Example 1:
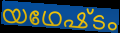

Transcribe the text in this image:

യഥേഷ്‌ടം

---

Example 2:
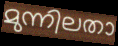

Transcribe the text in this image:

മുന്നിലതാ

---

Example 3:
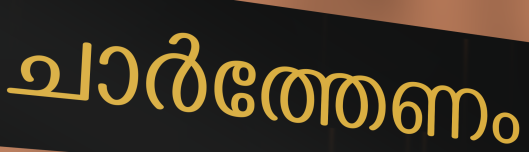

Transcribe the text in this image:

ചാർത്തേണം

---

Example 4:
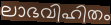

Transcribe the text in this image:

ലാഭവിഹിതം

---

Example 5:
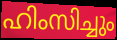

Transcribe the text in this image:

ഹിംസിച്ചും